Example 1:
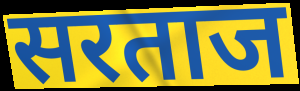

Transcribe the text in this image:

सरताज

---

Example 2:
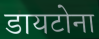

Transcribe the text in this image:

डायटोना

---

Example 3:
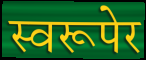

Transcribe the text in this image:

स्वरूपेर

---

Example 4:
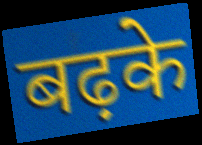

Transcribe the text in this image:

बढ़के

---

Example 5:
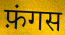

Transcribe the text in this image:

फ़ंगस